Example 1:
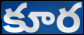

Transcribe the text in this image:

కూర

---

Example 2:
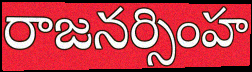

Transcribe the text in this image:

రాజనర్సింహ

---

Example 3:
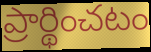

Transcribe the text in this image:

ప్రార్థించటం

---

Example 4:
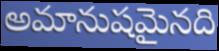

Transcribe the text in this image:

అమానుషమైనది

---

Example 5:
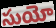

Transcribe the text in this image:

సుయో